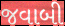
જવાબી